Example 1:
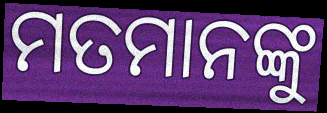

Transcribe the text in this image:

ମତମାନଙ୍କୁ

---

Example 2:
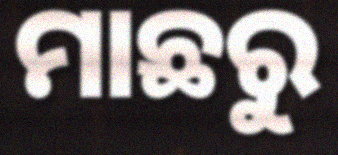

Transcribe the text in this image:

ମାଛରୁ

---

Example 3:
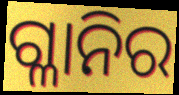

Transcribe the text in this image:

ଗ୍ଳାନିର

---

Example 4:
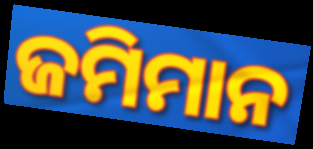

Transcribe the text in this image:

ଜମିମାନ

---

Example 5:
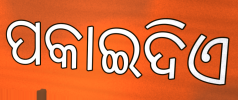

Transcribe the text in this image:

ପକାଇଦିଏ